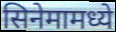
सिनेमामध्ये